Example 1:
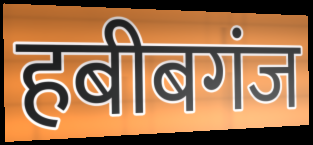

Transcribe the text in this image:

हबीबगंज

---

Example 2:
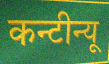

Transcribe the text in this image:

कन्टीन्यू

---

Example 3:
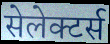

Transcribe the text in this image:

सेलेक्टर्स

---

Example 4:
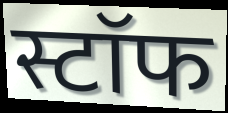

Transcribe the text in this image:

स्‍टॉफ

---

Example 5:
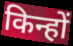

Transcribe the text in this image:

किन्हों